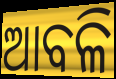
ଆବଳି